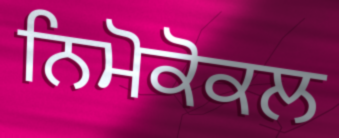
ਨਿਮੋਕੋਕਲ